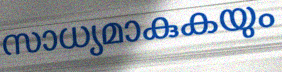
സാധ്യമാകുകയും